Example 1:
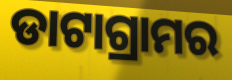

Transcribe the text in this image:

ଡାଟାଗ୍ରାମର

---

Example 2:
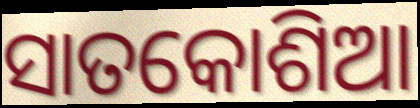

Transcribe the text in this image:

ସାତକୋଶିଆ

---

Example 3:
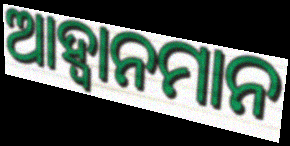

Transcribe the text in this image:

ଆହ୍ୱାନମାନ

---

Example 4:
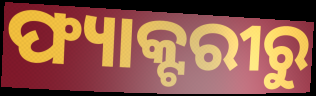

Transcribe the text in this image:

ଫ୍ୟାକ୍ଟରୀରୁ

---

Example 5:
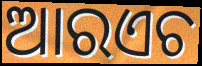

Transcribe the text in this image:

ଆରଏଚ